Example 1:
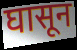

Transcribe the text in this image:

घासून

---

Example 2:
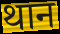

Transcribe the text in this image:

थान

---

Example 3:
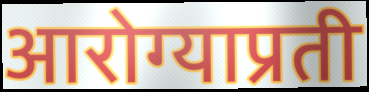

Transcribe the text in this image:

आरोग्याप्रती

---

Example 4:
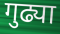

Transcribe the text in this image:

गुढ्या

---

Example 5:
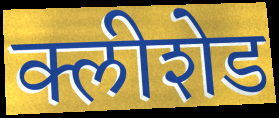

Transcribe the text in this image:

क्लीशेड